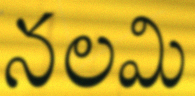
నలమి